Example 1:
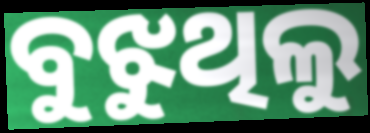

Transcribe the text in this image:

ବୁଝୁଥିଲୁ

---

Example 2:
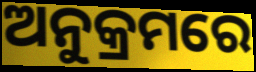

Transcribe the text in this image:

ଅନୁକ୍ରମରେ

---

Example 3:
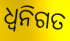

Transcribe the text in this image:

ଧ୍ୱନିଗତ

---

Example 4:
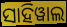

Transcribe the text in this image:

ସାହିୱାଲ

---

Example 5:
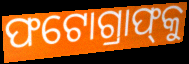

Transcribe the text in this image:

ଫଟୋଗ୍ରାଫ୍‌କୁ